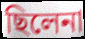
ছিলেনা